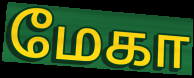
மேகா